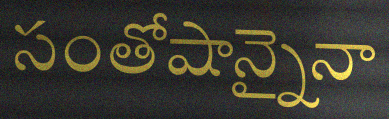
సంతోషాన్నైనా